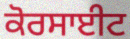
ਕੋਰਸਾਈਟ